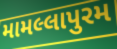
મામલ્લાપુરમ